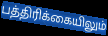
பத்திரிக்கையிலும்